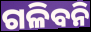
ଗଳିବନି